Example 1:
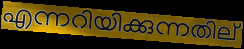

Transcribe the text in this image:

എന്നറിയിക്കുന്നതില്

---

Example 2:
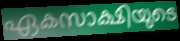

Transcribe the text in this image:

ഏകസാക്ഷിയുടെ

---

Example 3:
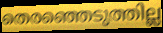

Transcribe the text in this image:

തെരഞ്ഞെടുത്തില്ല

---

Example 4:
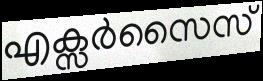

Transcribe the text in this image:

എക്സർസൈസ്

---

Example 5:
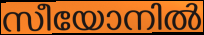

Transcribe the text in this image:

സീയോനിൽ